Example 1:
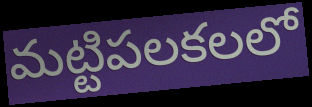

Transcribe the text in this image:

మట్టిపలకలలో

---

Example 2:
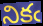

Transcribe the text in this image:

నికఁ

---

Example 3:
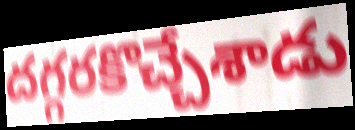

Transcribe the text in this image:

దగ్గరకొచ్చేశాడు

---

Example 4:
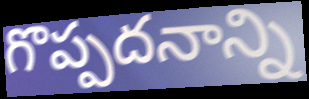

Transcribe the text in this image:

గొప్పదనాన్ని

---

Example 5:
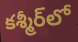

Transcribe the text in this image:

కశ్మీర్‌లో